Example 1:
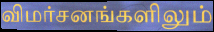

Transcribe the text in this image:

விமர்சனங்களிலும்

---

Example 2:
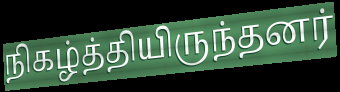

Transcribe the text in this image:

நிகழ்த்தியிருந்தனர்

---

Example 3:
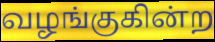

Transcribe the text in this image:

வழங்குகின்ற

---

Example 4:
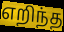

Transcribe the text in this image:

எறிந்த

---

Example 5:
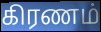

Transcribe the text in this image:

கிரணம்